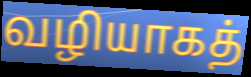
வழியாகத்